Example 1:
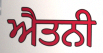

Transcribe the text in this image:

ਐਤਨੀ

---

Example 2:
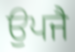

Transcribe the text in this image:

ਉਪਜੈ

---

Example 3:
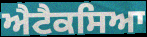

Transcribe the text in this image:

ਐਟੈਕਸਿਆ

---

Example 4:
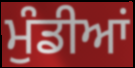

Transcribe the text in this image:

ਮੁੰਡੀਆਂ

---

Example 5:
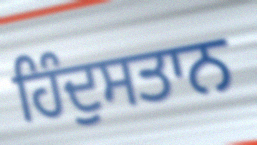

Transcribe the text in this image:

ਹਿੰਦੁਸਤਾਨ